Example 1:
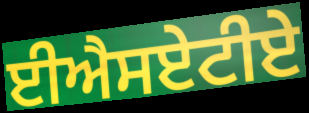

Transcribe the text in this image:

ਈਐਸਏਟੀਏ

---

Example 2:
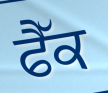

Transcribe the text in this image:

ਫੈੱਕ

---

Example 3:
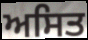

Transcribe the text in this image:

ਅਸਿਤ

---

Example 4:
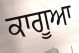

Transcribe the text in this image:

ਕਾਗੂਆ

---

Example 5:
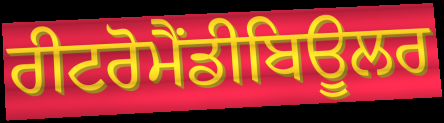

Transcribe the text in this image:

ਰੀਟਰੋਮੈਂਡੀਬਿਊਲਰ